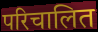
परिचालित